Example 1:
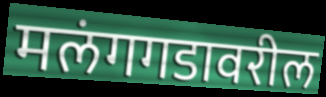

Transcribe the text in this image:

मलंगगडावरील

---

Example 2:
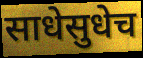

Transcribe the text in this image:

साधेसुधेच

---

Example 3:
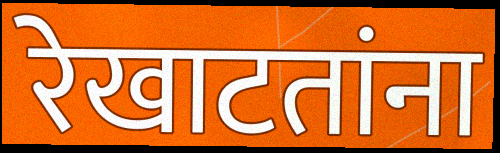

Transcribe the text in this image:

रेखाटतांना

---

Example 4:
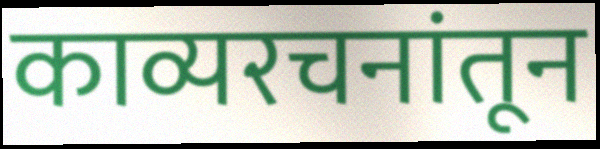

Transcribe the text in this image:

काव्यरचनांतून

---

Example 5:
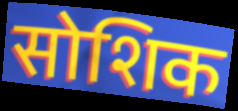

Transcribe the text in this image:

सोशिक